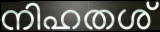
നിഹതശ്